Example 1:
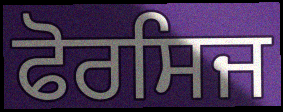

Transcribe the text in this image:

ਫੋਰਸਿਜ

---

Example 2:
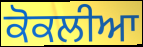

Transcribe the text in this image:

ਕੋਕਲੀਆ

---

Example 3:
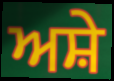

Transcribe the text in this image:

ਅਸ਼ੇ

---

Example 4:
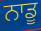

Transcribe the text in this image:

ਨਾਡੂ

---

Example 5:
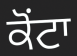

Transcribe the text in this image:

ਕੋਂਟਾ